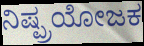
ನಿಷ್ಪ್ರಯೋಜಕ